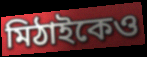
মিঠাইকেও